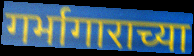
गर्भागाराच्या